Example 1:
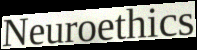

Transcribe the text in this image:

Neuroethics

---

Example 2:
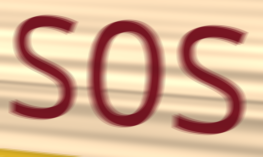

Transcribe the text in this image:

SOS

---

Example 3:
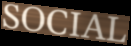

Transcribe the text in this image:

SOCIAL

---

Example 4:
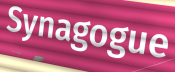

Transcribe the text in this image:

Synagogue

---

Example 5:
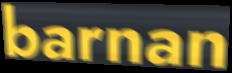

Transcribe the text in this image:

barnan